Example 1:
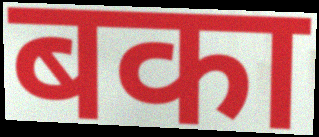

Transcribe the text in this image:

बका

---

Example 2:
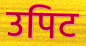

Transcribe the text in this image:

उपिट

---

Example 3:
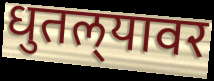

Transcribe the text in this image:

धुतल्यावर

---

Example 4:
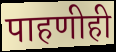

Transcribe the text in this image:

पाहणीही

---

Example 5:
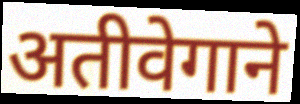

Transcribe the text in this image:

अतीवेगाने